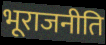
भूराजनीति